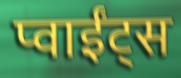
प्वाईंट्स